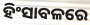
ହିଂସାବଳରେ